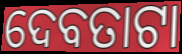
ଦେବତାଟା